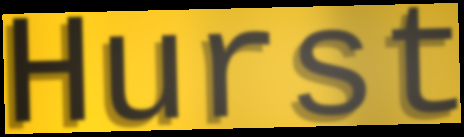
Hurst